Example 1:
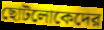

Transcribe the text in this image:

ছোটলোকেদের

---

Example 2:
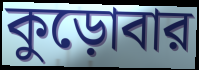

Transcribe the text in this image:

কুড়োবার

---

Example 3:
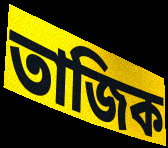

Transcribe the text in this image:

তাজিক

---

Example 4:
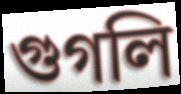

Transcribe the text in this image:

গুগলি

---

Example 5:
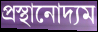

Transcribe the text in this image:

প্রস্থানোদ্যম